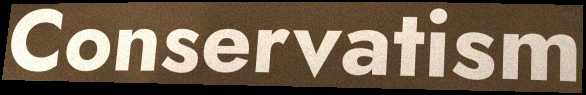
Conservatism